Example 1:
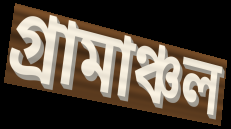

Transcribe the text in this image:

গ্ৰামাঞ্চল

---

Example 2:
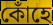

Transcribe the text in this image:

কোঁহে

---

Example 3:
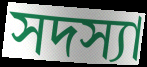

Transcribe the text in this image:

সদস্যা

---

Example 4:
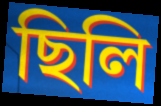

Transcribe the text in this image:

ছিলি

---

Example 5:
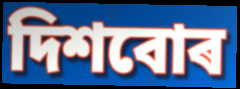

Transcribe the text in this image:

দিশবোৰ